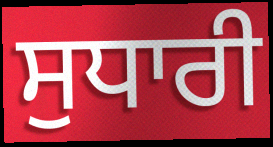
ਸੁਧਾਰੀ